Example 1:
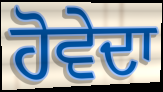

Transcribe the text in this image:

ਹੋਵੇਦਾ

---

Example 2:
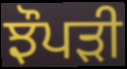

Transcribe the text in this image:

ਝੌਪੜੀ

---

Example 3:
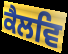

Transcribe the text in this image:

ਕੈਲਵਿ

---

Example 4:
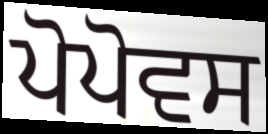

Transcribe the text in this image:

ਪੋਪੋਵਸ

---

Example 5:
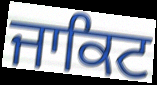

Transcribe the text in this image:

ਜਾਕਿਟ